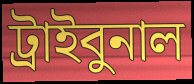
ট্রাইবুনাল